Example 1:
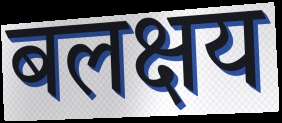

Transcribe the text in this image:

बलक्षय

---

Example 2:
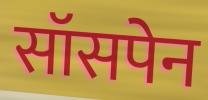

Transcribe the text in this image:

सॉसपेन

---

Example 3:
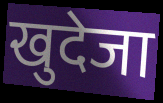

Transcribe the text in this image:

खुदेजा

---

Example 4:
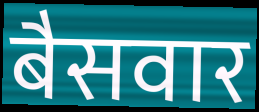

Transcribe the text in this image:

बैसवार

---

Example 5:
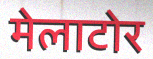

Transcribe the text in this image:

मेलाटोर